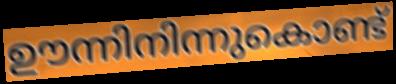
ഊന്നിനിന്നുകൊണ്ട്